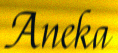
Aneka